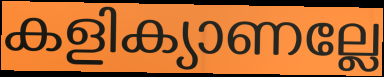
കളിക്യാണല്ലേ